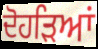
ਦੋਹੜਿਆਂ